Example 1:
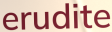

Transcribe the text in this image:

erudite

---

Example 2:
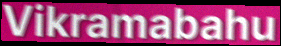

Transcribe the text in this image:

Vikramabahu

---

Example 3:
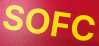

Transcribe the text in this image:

SOFC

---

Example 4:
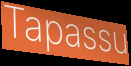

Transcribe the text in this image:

Tapassu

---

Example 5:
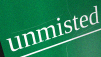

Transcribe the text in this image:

unmisted